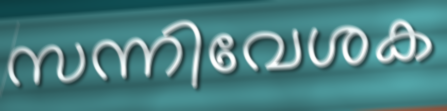
സന്നിവേശക